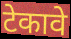
टेकावे